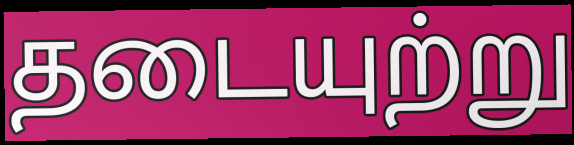
தடையுற்று